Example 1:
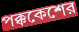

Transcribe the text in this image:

পক্ককেশের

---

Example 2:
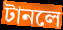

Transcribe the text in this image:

টানলে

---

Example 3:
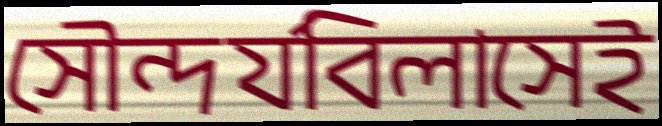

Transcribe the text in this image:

সৌন্দর্যবিলাসেই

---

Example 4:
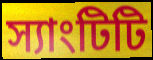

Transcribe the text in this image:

স্যাংটিটি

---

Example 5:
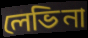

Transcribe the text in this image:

লেভিনা